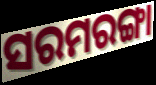
ସରମରଙ୍ଗା